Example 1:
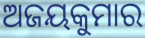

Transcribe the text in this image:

ଅଜୟକୁମାର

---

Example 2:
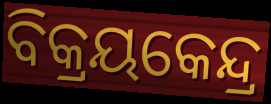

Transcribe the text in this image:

ବିକ୍ରୟକେନ୍ଦ୍ର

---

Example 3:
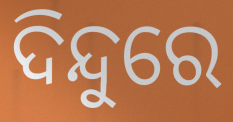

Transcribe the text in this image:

ଦିନ୍ଦୁରେ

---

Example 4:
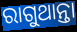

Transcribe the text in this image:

ରାଗୁଥାନ୍ତା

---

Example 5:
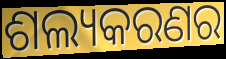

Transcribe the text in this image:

ଶଲ୍ୟକରଣର